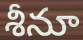
శీనూ